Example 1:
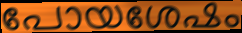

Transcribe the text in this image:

പോയശേഷം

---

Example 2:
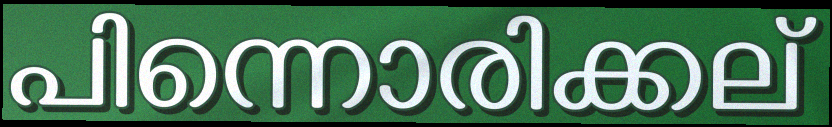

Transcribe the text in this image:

പിന്നൊരിക്കല്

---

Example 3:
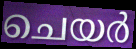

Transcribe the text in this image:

ചെയർ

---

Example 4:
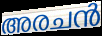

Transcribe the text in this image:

അരചൻ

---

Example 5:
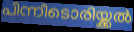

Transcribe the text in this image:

പിന്നീടൊരിയ്ക്കൽ